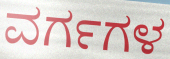
ವರ್ಗಗಳ